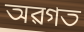
অৱগত